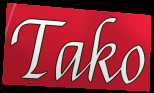
Tako